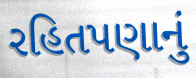
રહિતપણાનું